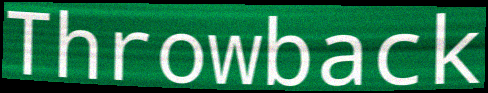
Throwback